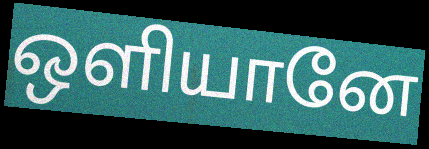
ஒளியானே